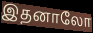
இதனாலோ